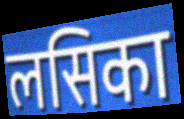
लसिका